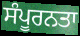
ਸੰਪੂਰਨਤਾ